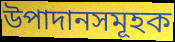
উপাদানসমূহক